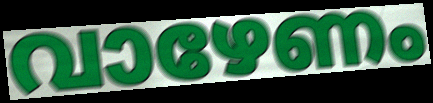
വാഴേണം